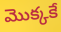
మొక్కకే